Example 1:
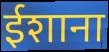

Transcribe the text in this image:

ईशाना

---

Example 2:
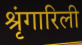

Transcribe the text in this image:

श्रृंगारिली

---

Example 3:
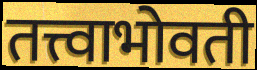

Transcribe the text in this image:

तत्त्वाभोवती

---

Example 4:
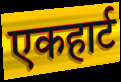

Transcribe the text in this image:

एकहार्ट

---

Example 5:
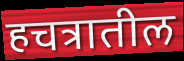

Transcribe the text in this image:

हचत्रातील